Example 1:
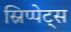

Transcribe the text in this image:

स्निप्पेट्स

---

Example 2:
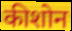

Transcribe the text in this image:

कीशोन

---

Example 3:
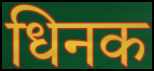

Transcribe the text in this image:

धिनक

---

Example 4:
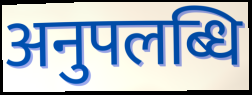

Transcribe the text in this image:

अनुपलब्धि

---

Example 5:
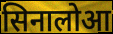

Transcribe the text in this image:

सिनालोआ